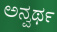
ಅನ್ವರ್ಥ